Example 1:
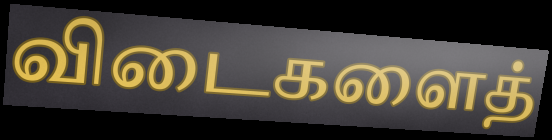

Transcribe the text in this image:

விடைகளைத்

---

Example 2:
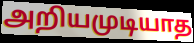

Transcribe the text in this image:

அறியமுடியாத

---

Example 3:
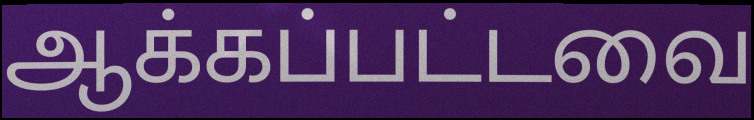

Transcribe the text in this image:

ஆக்கப்பட்டவை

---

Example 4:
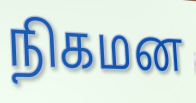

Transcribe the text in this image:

நிகமன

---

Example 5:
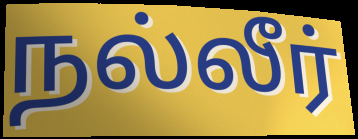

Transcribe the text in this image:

நல்லீர்